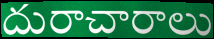
దురాచారాలు